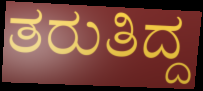
ತರುತಿದ್ದ